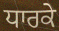
ਧਾਰਕੇ